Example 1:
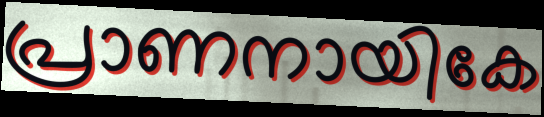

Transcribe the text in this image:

പ്രാണനായികേ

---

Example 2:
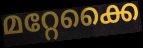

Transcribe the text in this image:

മറ്റേക്കൈ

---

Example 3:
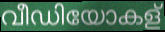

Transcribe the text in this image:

വീഡിയോകള്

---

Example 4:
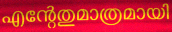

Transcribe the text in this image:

എന്റേതുമാത്രമായി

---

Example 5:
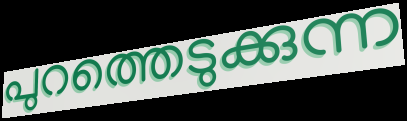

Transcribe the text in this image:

പുറത്തെടുക്കുന്ന